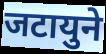
जटायुने